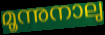
മൂന്നുനാലു